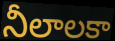
నీలాలకా